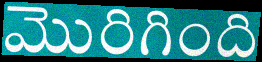
మొరిగింది